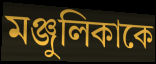
মঞ্জুলিকাকে